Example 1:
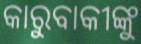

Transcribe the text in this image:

କାରୁବାକୀଙ୍କୁ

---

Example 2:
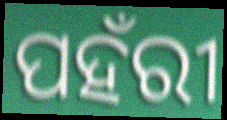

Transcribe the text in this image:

ପହଁରୀ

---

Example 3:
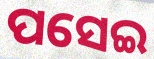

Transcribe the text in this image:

ପସେଇ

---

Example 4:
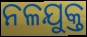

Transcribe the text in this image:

ନଳଯୁକ୍ତ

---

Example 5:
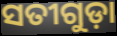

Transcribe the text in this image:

ସତୀଗୁଡ଼ା